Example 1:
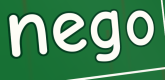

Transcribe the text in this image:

nego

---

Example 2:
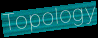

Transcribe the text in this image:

Topology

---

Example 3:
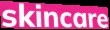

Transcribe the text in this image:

skincare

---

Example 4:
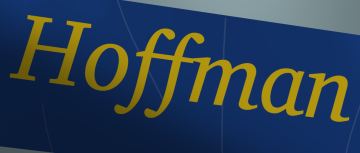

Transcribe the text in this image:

Hoffman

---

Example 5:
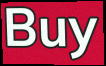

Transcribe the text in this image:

Buy